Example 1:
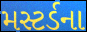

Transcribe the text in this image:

મસ્ટર્ડના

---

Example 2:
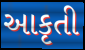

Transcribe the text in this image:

આકૃતી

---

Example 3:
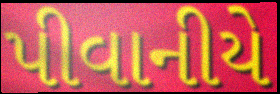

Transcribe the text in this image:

પીવાનીયે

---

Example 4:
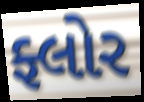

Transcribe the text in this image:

ફ્લોર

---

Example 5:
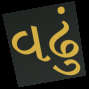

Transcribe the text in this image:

વઢું